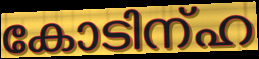
കോടിന്ഹ